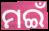
ମଇଁ